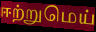
ஈற்றுமெய்